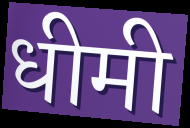
धीमी